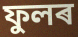
ফুলৰ